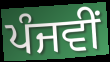
ਪੰਜਵੀਂ